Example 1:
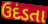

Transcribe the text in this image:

ઉદંડતા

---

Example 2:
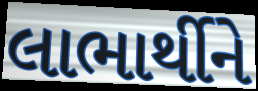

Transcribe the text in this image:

લાભાર્થીને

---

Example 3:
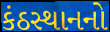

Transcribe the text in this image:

કંઠસ્થાનનો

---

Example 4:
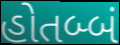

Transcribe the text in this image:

હોતબ્બં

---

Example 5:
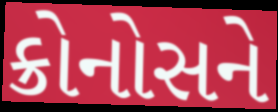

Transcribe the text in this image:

ક્રોનોસને